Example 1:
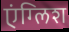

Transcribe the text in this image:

एंग्लिश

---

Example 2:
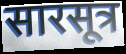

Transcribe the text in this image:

सारसूत्र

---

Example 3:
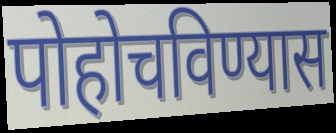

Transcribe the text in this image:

पोहोचविण्यास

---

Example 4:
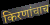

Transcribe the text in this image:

किरणांचाच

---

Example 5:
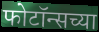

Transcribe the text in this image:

फोटॉन्सच्या